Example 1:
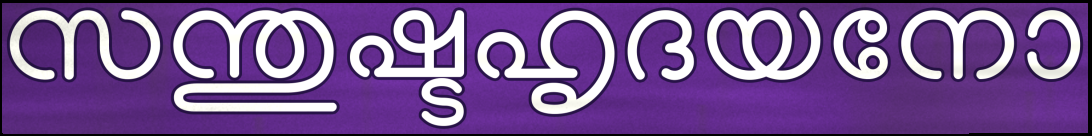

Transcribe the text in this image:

സന്തുഷ്ടഹൃദയനോ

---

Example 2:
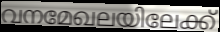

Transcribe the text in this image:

വനമേഖലയിലേക്ക്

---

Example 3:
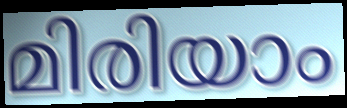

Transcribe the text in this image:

മിരിയാം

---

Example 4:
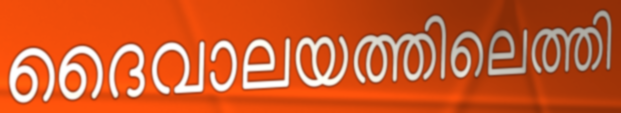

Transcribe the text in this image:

ദൈവാലയത്തിലെത്തി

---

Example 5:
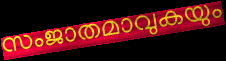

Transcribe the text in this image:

സംജാതമാവുകയും